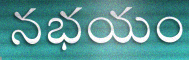
నభయం